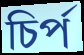
চির্প